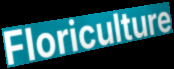
Floriculture